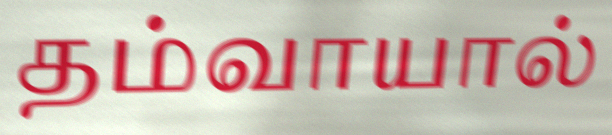
தம்வாயால்